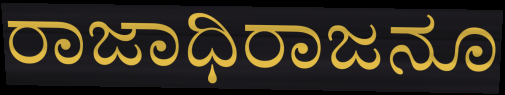
ರಾಜಾಧಿರಾಜನೂ